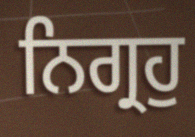
ਨਿਗ੍ਰਹੁ